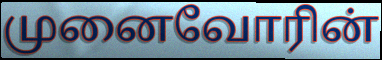
முனைவோரின்